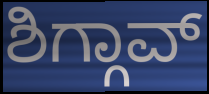
ಶಿಗ್ಗಾವ್